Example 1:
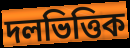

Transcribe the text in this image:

দলভিত্তিক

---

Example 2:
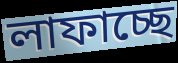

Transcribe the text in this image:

লাফাচ্ছে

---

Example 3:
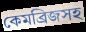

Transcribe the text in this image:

কেমব্রিজসহ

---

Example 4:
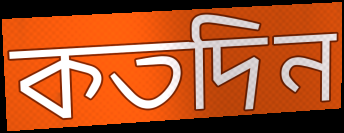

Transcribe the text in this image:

কতদিন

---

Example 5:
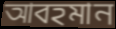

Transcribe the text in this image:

আবহমান